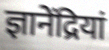
ज्ञानेंद्रियां